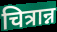
चित्रान्न